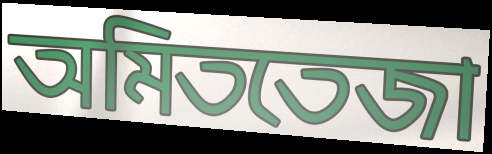
অমিততেজা